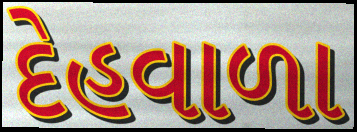
દેહવાળા